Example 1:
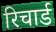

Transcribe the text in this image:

रिचार्ड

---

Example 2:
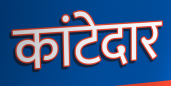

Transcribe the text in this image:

कांटेदार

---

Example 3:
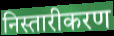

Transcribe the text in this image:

निस्तारीकरण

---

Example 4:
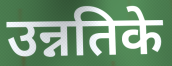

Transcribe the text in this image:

उन्नतिके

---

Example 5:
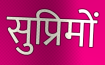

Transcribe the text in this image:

सुप्रिमों